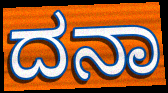
ದನಾ